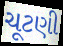
ચૂટણી